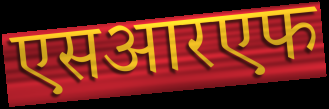
एसआरएफ